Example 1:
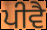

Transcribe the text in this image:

ਪੀਵੈ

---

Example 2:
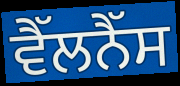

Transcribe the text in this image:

ਵੈੱਲਨੈੱਸ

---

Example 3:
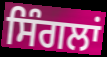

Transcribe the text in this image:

ਸਿੰਗਲਾਂ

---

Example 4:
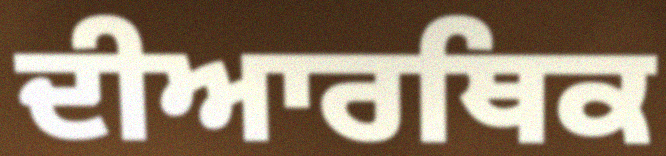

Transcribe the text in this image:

ਦੀਆਰਥਿਕ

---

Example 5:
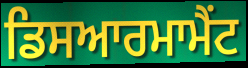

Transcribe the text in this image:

ਡਿਸਆਰਮਾਮੈਂਟ